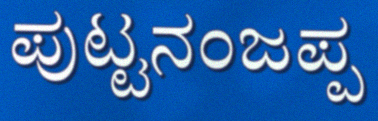
ಪುಟ್ಟನಂಜಪ್ಪ